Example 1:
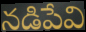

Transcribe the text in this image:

నడిపేవి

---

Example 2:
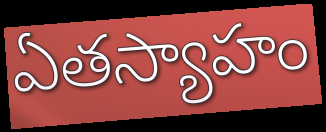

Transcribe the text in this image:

ఏతస్యాహం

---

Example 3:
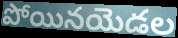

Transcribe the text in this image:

పోయినయెడల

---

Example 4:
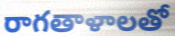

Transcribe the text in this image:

రాగతాళాలతో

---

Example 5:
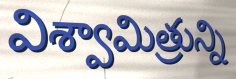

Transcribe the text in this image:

విశ్వామిత్రున్ని